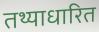
तथ्याधारित